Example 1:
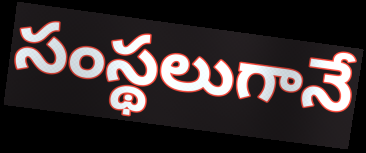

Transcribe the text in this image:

సంస్థలుగానే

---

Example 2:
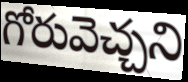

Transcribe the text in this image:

గోరువెచ్చని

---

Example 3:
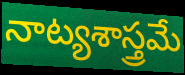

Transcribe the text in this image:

నాట్యశాస్త్రమే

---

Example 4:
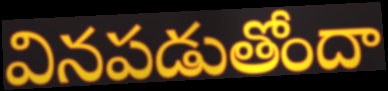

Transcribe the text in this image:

వినపడుతోందా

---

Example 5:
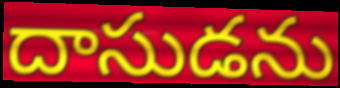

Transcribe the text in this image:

దాసుడను